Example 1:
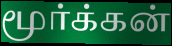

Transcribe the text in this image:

மூர்க்கன்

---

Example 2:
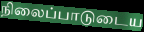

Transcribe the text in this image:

நிலைப்பாடுடைய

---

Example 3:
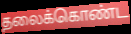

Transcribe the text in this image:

தலைக்கொண்ட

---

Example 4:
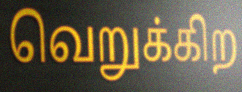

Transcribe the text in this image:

வெறுக்கிற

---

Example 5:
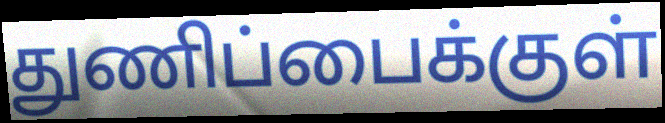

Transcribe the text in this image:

துணிப்பைக்குள்